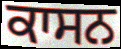
ਕਾਸਨ